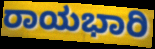
ರಾಯಭಾರಿ